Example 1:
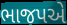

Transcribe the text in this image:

ભાજપએ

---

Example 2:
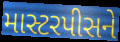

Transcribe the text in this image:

માસ્ટરપીસને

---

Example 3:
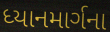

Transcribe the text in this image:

ધ્યાનમાર્ગના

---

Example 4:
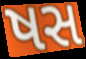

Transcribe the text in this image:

ષસ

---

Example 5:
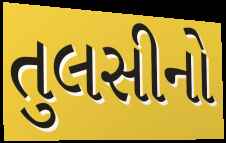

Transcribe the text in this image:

તુલસીનો